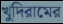
খুদিরামের